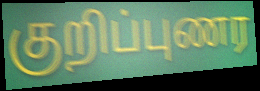
குறிப்புணர